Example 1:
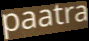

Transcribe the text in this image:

paatra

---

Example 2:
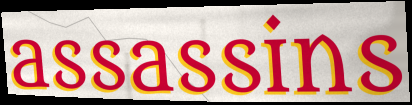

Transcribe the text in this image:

assassins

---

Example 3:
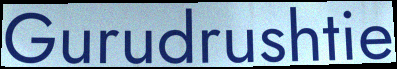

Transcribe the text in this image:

Gurudrushtie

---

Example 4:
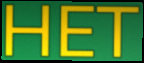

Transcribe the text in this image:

HET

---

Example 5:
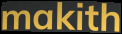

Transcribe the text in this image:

makith